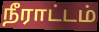
நீராட்டம்